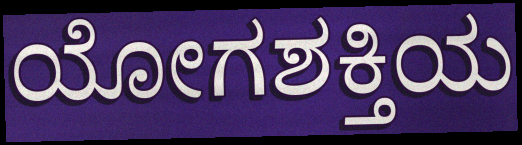
ಯೋಗಶಕ್ತಿಯ